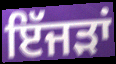
ਇੱਜੜਾਂ